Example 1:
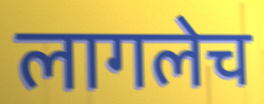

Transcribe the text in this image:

लागलेच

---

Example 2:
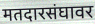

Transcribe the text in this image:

मतदारसंघावर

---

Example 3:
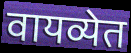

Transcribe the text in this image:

वायव्येत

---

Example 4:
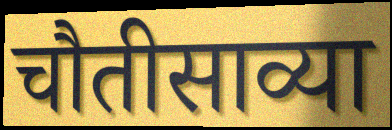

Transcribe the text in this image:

चौतीसाव्या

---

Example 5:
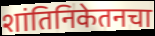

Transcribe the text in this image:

शांतिनिकेतनचा